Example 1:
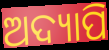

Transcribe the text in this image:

ଅଦ୍ୟାପି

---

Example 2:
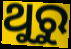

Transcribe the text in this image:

ଥୁରୁ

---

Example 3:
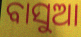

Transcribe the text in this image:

ବାସୁଆ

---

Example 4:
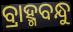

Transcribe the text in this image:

ବ୍ରାହ୍ମବନ୍ଧୁ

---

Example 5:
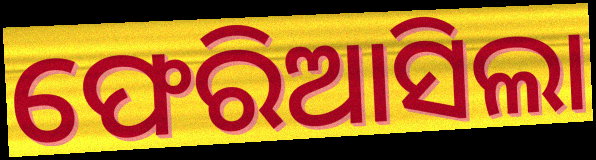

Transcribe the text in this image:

ଫେରିଆସିଲା